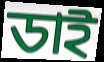
ডাই